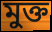
মুক্ত